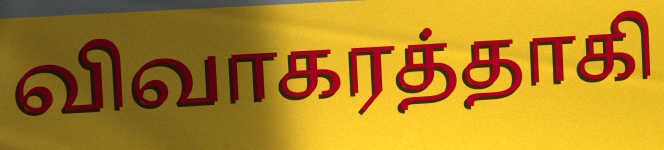
விவாகரத்தாகி